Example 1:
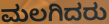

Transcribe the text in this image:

ಮಲಗಿದರು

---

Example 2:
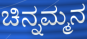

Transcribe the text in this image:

ಚಿನ್ನಮ್ಮನ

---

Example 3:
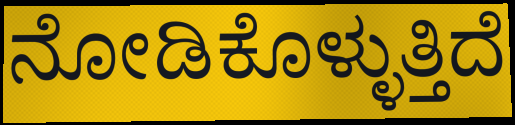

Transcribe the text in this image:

ನೋಡಿಕೊಳ್ಳುತ್ತಿದೆ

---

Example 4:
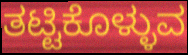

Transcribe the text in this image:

ತಟ್ಟಿಕೊಳ್ಳುವ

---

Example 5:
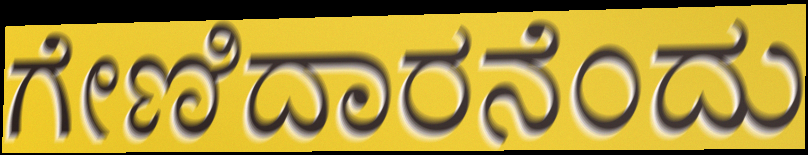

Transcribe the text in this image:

ಗೇಣಿದಾರನೆಂದು